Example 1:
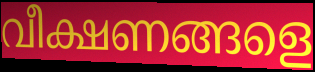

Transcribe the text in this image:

വീക്ഷണങ്ങളെ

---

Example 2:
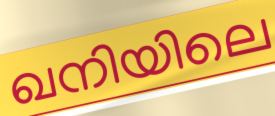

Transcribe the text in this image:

ഖനിയിലെ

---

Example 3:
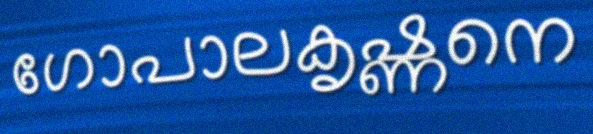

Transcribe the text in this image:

ഗോപാലകൃഷ്ണനെ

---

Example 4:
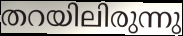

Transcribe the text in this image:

തറയിലിരുന്നു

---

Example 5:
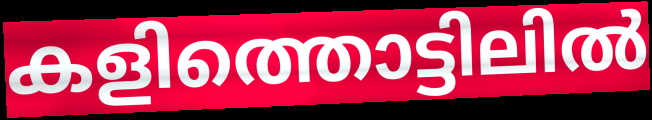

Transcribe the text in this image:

കളിത്തൊട്ടിലിൽ